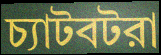
চ্যাটবটরা